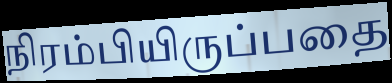
நிரம்பியிருப்பதை